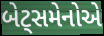
બેટ્સમેનોએ